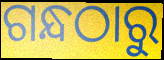
ଗନ୍ଧଠାରୁ